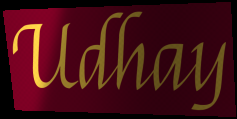
Udhay